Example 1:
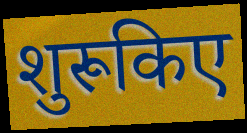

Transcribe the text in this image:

शुरूकिए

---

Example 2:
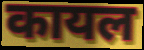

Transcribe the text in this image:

कायल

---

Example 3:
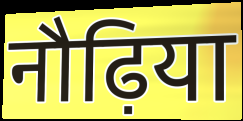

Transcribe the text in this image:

नौढ़िया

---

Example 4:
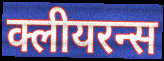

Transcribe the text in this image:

क्लीयरन्स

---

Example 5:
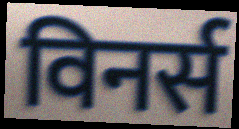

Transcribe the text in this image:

विनर्स